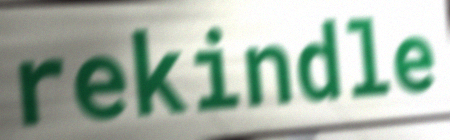
rekindle